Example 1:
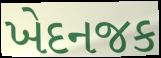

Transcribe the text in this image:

ખેદનજક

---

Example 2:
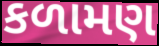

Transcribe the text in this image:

કળામણ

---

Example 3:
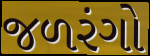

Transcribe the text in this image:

જળરંગો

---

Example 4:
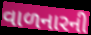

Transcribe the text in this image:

વાળનારની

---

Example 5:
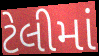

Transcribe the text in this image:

ટેલીમાં